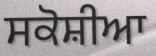
ਸਕੋਸ਼ੀਆ